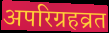
अपरिग्रहव्रत